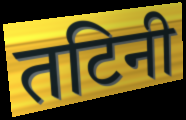
तटिनी